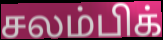
சலம்பிக்